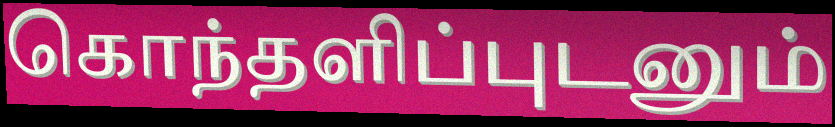
கொந்தளிப்புடனும்